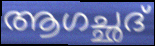
ആഗച്ഛദ്